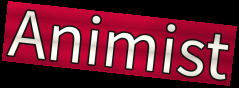
Animist